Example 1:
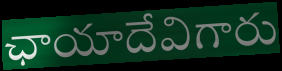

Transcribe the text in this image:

ఛాయాదేవిగారు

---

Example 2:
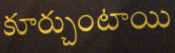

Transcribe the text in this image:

కూర్చుంటాయి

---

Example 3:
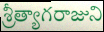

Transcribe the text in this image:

శ్రీత్యాగరాజుని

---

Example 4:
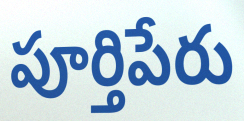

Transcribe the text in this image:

పూర్తిపేరు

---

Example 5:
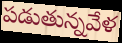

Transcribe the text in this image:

పడుతున్నవేళ